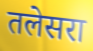
तलेसरा